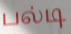
பல்டி